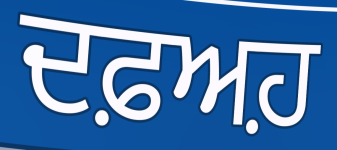
ਦਫ਼ਅ਼ਹ